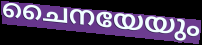
ചൈനയേയും